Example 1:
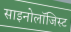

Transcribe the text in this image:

साइनोलॉजिस्ट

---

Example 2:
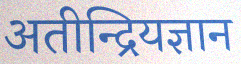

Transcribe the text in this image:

अतीन्द्रियज्ञान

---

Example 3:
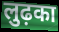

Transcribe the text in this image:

लुढ़का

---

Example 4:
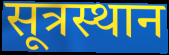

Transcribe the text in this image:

सूत्रस्थान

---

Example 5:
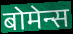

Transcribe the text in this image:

बोमेन्स